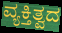
ವ್ಯಕ್ತಿತ್ವದ